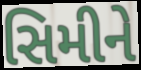
સિમીને